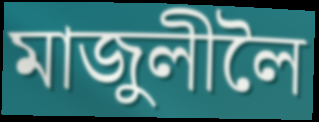
মাজুলীলৈ